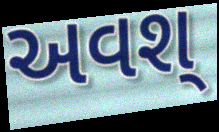
અવશ્